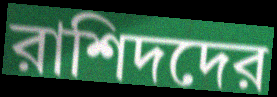
রাশিদদের